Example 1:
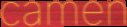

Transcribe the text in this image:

camen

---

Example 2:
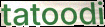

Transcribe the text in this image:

tatoodi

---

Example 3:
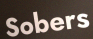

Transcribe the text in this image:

Sobers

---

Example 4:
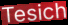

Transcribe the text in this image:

Tesich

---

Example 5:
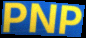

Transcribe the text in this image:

PNP